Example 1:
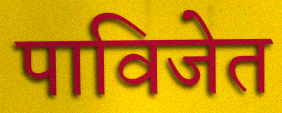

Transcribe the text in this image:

पाविजेत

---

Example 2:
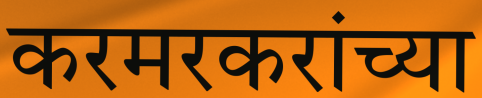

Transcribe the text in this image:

करमरकरांच्या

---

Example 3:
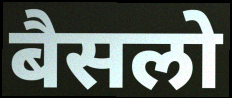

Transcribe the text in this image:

बैसलो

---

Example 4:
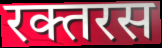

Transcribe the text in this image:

रक्तरस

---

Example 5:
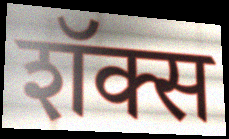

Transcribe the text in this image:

शॅक्स